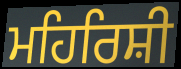
ਮਹਿਰਿਸ਼ੀ